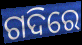
ଗଦିରେ